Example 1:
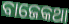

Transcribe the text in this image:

ବାଜେକଥା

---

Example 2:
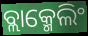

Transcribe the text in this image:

ବ୍ଲାକ୍ମେଲିଂ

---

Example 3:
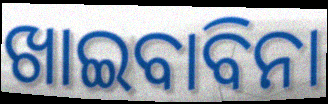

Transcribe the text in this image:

ଖାଇବାବିନା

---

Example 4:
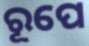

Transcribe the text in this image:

ରୂପେ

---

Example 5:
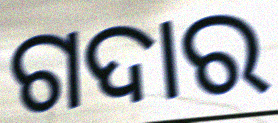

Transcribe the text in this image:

ଗଦାର